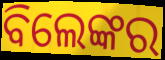
ବିଲେଙ୍କର